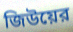
জিউয়ের